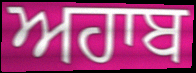
ਅਹਾਬ